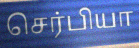
செர்பியா